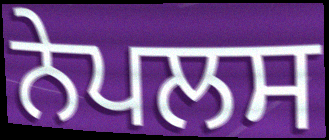
ਨੇਪਲਸ